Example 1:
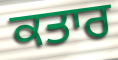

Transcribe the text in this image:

ਕਤਾਰ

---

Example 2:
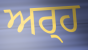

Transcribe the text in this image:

ਅਰ੍‍ਹ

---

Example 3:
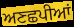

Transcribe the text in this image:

ਅਣਛਪੀਆਂ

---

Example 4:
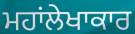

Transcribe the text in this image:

ਮਹਾਂਲੇਖਾਕਾਰ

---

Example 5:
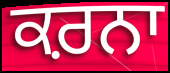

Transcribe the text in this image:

ਕ਼ਰਨਾ